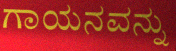
ಗಾಯನವನ್ನು